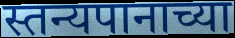
स्तन्यपानाच्या